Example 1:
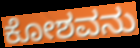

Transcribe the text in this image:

ಕೋಶವನು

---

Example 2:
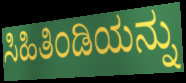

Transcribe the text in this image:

ಸಿಹಿತಿಂಡಿಯನ್ನು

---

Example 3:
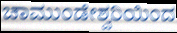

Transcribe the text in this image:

ಚಾಮುಂಡೇಶ್ವರಿಯಿಂದ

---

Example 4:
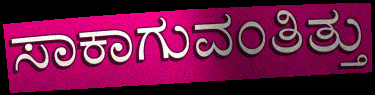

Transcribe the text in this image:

ಸಾಕಾಗುವಂತಿತ್ತು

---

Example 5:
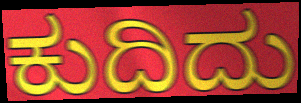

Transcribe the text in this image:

ಕುದಿದು